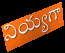
నియ్యగా